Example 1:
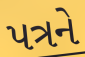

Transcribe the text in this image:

પત્રને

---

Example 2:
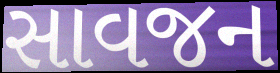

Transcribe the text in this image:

સાવજન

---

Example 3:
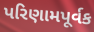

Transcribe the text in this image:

પરિણામપૂર્વક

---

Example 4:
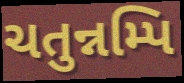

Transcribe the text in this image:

ચતુન્નમ્પિ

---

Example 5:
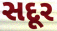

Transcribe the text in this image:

સદૂર